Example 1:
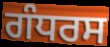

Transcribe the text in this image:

ਗੰਧਰਸ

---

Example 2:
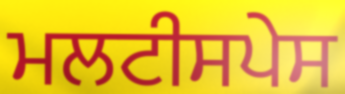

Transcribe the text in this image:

ਮਲਟੀਸਪੇਸ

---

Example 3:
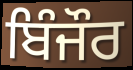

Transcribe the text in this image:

ਬਿੰਜੌਰ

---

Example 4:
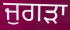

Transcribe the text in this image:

ਜੁਗੜਾ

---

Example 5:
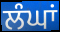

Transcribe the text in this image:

ਲੰਘਾਂ